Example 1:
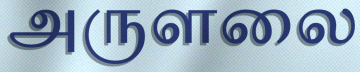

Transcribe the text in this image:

அருளலை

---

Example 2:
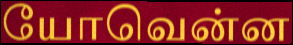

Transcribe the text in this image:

யோவென்ன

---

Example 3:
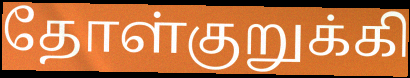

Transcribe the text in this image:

தோள்குறுக்கி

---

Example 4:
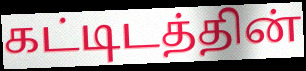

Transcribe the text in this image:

கட்டிடத்தின்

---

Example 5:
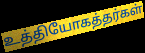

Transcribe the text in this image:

உத்தியோகத்தர்கள்